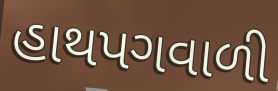
હાથપગવાળી